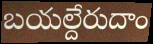
బయల్దేరుదాం